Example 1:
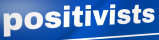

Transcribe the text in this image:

positivists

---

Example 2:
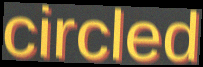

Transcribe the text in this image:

circled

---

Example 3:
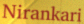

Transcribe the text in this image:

Nirankari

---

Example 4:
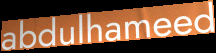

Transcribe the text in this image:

abdulhameed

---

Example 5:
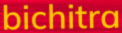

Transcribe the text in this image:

bichitra